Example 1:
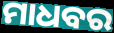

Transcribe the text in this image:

ମାଧବର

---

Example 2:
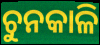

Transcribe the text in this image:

ଚୁନକାଳି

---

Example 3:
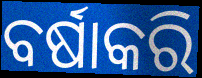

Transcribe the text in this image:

ବର୍ଷାକରି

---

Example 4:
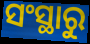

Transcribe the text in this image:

ସଂସ୍ଥାରୁ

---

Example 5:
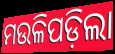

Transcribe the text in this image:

ମଉଳିପଡ଼ିଲା